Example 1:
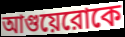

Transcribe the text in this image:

আগুয়েরোকে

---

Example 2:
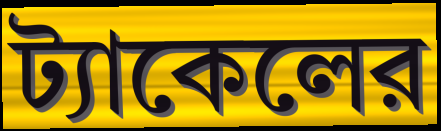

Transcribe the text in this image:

ট্যাকেলের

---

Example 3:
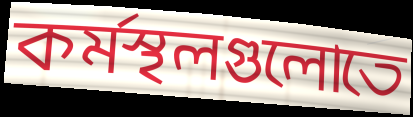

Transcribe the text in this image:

কর্মস্থলগুলোতে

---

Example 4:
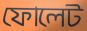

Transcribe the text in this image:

ফোলেট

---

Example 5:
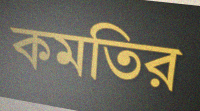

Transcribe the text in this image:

কমতির